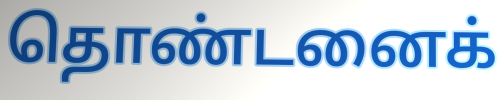
தொண்டனைக்